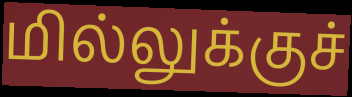
மில்லுக்குச்